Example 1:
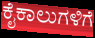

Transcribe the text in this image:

ಕೈಕಾಲುಗಳಿಗೆ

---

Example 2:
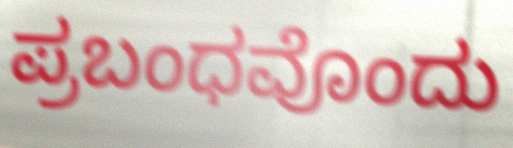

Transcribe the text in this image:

ಪ್ರಬಂಧವೊಂದು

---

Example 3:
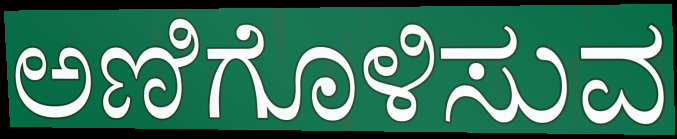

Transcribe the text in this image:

ಅಣಿಗೊಳಿಸುವ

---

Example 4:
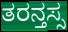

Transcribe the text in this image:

ತರನ್ತಸ್ಸ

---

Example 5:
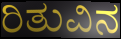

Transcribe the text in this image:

ರಿತುವಿನ